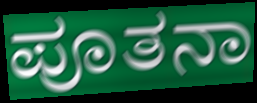
ಪೂತನಾ